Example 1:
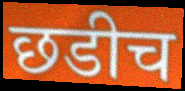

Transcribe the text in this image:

छडीच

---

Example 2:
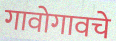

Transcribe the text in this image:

गावोगावचे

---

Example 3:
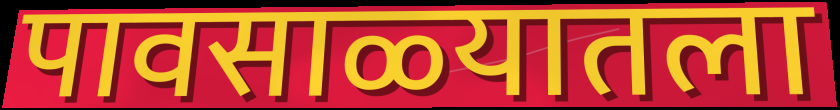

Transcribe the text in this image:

पावसाळ्यातला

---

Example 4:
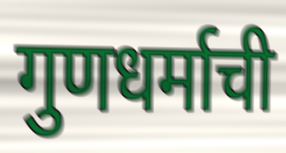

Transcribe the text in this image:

गुणधर्माची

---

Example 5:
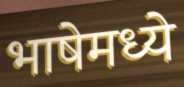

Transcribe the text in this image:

भाषेमध्ये